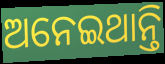
ଅନେଇଥାନ୍ତି